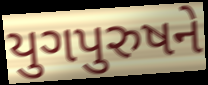
યુગપુરુષને